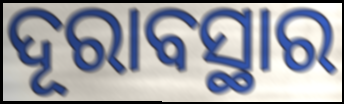
ଦୂରାବସ୍ଥାର